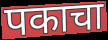
पकाचा